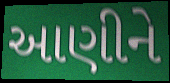
આણીને